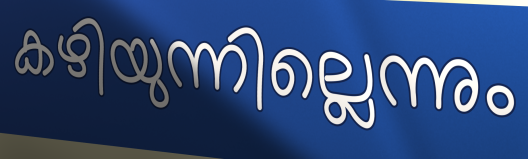
കഴിയുന്നില്ലെന്നും